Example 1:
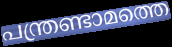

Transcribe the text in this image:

പന്ത്രണ്ടാമത്തെ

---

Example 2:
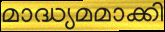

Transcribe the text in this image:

മാദ്ധ്യമമാക്കി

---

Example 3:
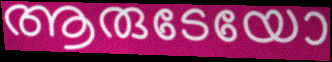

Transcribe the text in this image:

ആരുടേയോ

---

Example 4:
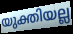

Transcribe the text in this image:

യുക്തിയല്ല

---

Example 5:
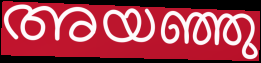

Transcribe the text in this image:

അയഞ്ഞു